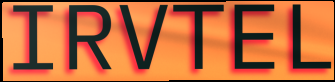
IRVTEL